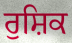
ਰੁਸ਼ਿਕ